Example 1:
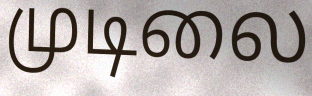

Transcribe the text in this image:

முடிலை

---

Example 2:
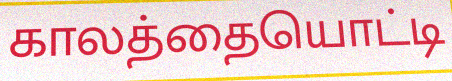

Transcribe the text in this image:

காலத்தையொட்டி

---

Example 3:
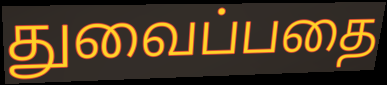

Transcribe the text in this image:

துவைப்பதை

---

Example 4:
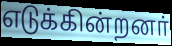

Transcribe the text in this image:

எடுக்கின்றனர்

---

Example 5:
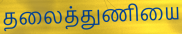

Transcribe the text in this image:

தலைத்துணியை